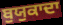
ਬੁਯੁਕਾਦਾ